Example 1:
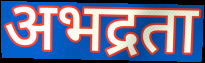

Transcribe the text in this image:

अभद्रता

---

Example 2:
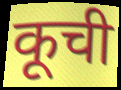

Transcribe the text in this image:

कूची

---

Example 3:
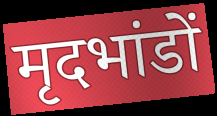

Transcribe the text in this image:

मृदभांडों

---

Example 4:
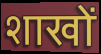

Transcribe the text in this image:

शाखों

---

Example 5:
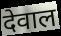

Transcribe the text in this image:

देवाल